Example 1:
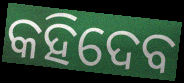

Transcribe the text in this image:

କହିଦେବ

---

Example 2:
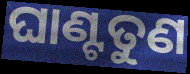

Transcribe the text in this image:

ଘାଣ୍ଟତୁଣ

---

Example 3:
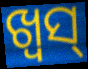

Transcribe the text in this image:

ଖ୍ୱସ୍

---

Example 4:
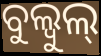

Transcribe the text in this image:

ବୁଲ୍ବୁଲ୍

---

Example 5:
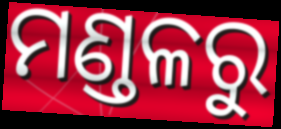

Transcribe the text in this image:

ମଣ୍ଡଳରୁ